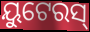
ୟୁଟେରସ୍